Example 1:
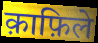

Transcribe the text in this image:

क़ाफ़िले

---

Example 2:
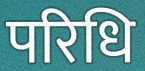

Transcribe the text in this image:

परिधि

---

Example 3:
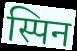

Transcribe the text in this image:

स्पिन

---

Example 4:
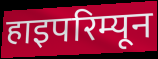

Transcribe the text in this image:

हाइपरिम्यून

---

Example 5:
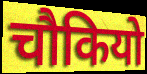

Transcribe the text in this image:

चौकियो